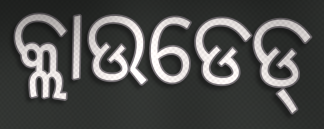
କ୍ଲାଉଡେଡ୍